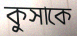
কুসাকে